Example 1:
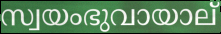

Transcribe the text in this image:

സ്വയംഭുവായാല്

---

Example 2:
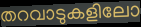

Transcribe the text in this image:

തറവാടുകളിലോ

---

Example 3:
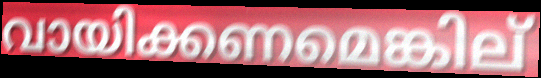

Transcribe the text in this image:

വായിക്കണമെങ്കില്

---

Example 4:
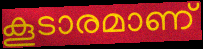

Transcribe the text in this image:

കൂടാരമാണ്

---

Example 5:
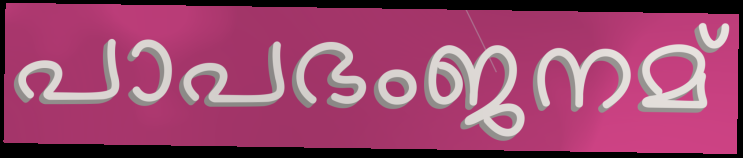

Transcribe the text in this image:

പാപഭംജനമ്